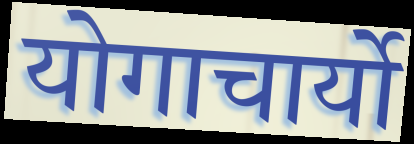
योगाचार्यो